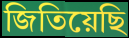
জিতিয়েছি